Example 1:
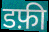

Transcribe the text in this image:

डफ़ी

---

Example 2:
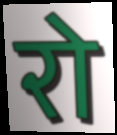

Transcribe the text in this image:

रो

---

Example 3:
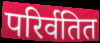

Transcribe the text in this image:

परिर्वतित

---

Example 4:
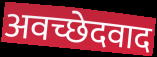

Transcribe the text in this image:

अवच्छेदवाद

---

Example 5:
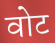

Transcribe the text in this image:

वोट